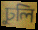
ঢুলি